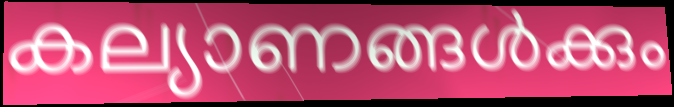
കല്യാണങ്ങൾക്കും